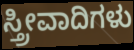
ಸ್ತ್ರೀವಾದಿಗಳು